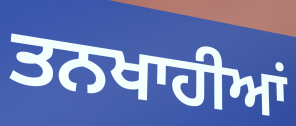
ਤਨਖਾਹੀਆਂ